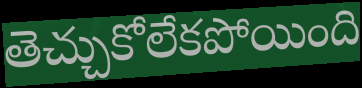
తెచ్చుకోలేకపోయింది